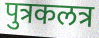
पुत्रकलत्र